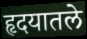
हृदयातले